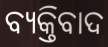
ବ୍ୟକ୍ତିବାଦ